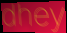
dhey